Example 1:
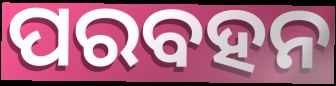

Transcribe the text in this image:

ପରବହନ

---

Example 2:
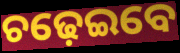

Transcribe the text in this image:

ଚଢ଼େଇବେ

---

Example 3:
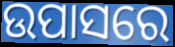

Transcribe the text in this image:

ଉପାସରେ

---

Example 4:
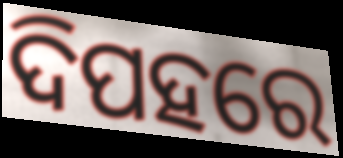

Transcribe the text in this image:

ଦିପହରେ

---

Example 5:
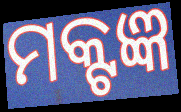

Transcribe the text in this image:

ମକ୍ଟଜ୍ଞ